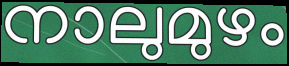
നാലുമുഴം